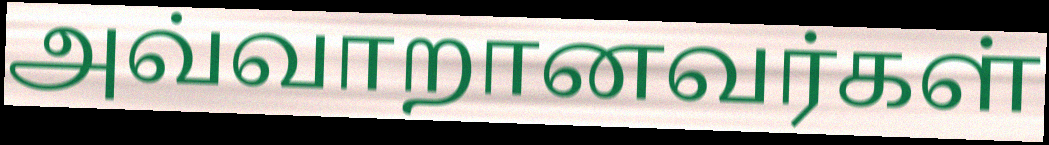
அவ்வாறானவர்கள்